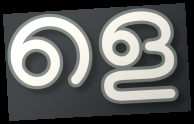
ളെ